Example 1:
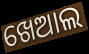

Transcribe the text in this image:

ଖେଆଲ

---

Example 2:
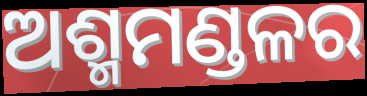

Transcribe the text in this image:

ଅଶ୍ମମଣ୍ଡଳର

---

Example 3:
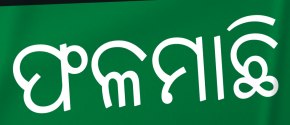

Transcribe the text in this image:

ଫଳମାଛି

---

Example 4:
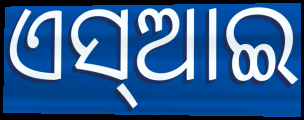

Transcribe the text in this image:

ଏସ୍ଆଇ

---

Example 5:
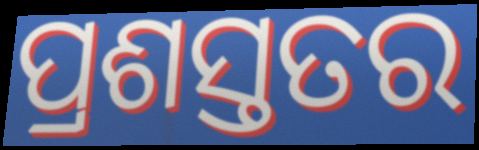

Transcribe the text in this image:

ପ୍ରଶସ୍ତତର